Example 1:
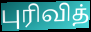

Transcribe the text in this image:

புரிவித்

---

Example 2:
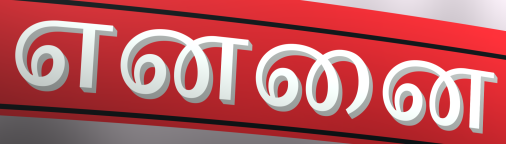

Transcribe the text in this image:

எனனை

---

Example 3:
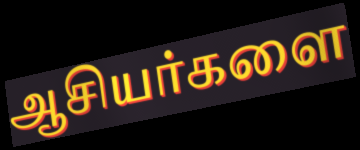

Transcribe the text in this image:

ஆசியர்களை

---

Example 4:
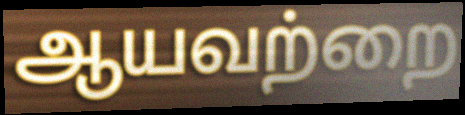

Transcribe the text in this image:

ஆயவற்றை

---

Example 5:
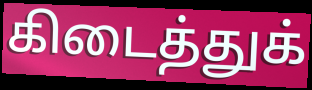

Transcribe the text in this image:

கிடைத்துக்